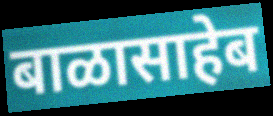
बाळासाहेब